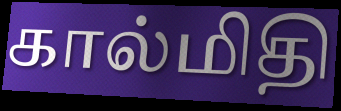
கால்மிதி